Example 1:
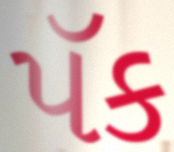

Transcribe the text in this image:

પૅક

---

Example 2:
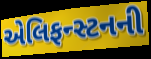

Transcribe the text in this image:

એલિફન્સ્ટનની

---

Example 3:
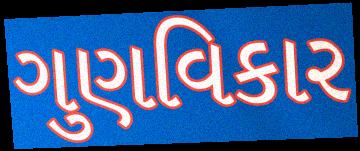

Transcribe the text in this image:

ગુણવિકાર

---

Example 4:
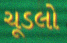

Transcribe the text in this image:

ચૂડલો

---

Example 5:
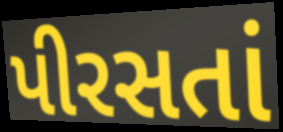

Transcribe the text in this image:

પીરસતાં